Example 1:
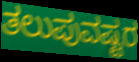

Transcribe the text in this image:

ತಲುಪುವಷ್ಟರ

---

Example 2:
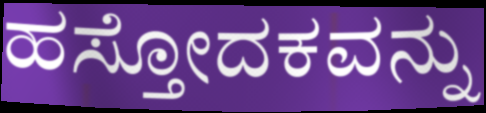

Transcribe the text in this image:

ಹಸ್ತೋದಕವನ್ನು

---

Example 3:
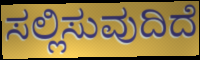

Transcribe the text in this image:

ಸಲ್ಲಿಸುವುದಿದೆ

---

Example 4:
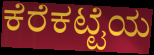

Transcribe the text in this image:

ಕೆರೆಕಟ್ಟೆಯ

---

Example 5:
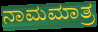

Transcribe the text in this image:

ನಾಮಮಾತ್ರ